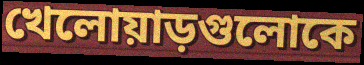
খেলোয়াড়গুলোকে